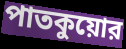
পাতকুয়োর